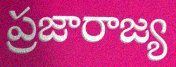
ప్రజారాజ్య